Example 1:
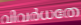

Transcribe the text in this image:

വിവർധതേ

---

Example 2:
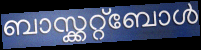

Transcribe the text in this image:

ബാസ്ക്കറ്റ്ബോൾ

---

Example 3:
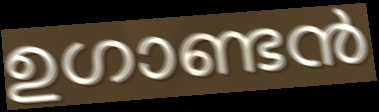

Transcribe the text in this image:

ഉഗാണ്ടൻ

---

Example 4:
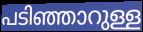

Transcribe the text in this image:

പടിഞ്ഞാറുള്ള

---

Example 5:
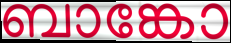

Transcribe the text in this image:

ബാങ്കോ